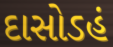
દાસોઽહં